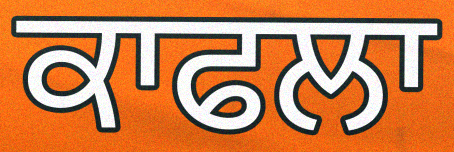
ਕਾਫਲਾ